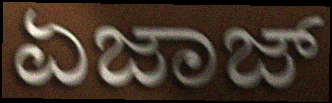
ಏಜಾಜ್